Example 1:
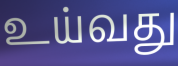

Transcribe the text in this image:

உய்வது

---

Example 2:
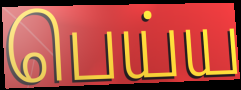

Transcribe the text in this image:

பெய்ய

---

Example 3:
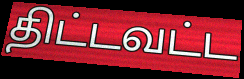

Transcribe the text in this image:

திட்டவட்ட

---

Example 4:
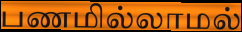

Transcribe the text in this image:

பணமில்லாமல்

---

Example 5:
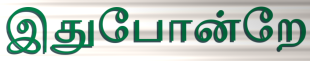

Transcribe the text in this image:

இதுபோன்றே